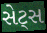
સેટ્સ